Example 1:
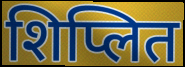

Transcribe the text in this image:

शिप्लित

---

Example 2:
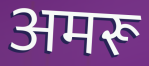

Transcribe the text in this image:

अमरू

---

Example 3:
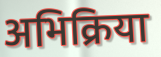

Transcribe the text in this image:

अभिक्रिया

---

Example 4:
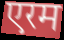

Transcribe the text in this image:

एरम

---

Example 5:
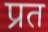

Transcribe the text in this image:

प्रत